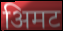
अिमट